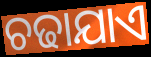
ଚଢାଯାଏ